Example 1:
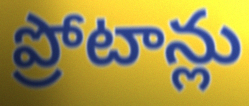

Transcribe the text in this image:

ప్రోటాన్లు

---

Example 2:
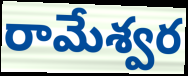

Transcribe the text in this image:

రామేశ్వర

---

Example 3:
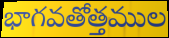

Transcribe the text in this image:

భాగవతోత్తముల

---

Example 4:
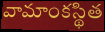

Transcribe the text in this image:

వామాంకస్థిత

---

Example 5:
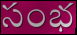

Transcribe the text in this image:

సంభ